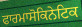
ਫਾਰਮਾਸੋਕਿਨੇਟਿਕ